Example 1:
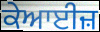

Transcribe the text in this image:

ਕੇਆਈਜ਼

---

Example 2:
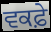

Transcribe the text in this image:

ਵਕਫ਼ੇ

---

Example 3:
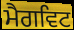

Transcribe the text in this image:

ਮੈਗਵਿਟ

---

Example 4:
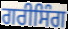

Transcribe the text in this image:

ਗਰੀਸਿੰਗ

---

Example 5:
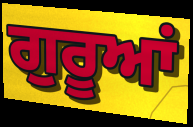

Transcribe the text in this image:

ਗੁਰੂਆਂ